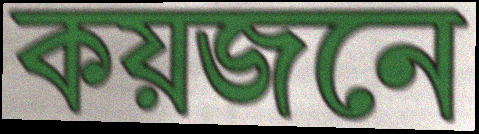
কয়জনে